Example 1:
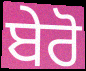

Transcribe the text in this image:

ਬੇਰੋ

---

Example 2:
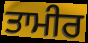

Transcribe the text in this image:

ਤਾਮੀਰ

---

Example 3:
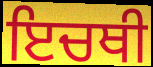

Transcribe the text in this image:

ਇਚਥੀ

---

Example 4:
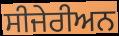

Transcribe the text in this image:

ਸੀਜੇਰੀਅਨ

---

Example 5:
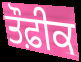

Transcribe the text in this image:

ਤੌਫ਼ੀਕ